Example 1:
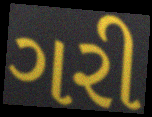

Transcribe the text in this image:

ગરી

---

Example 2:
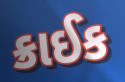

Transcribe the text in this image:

ક્રાઈક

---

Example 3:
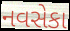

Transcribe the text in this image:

નવસેકા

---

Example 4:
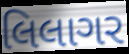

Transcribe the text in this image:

લિલાગર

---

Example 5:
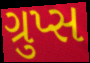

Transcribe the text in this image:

ગ્રુપ્સ